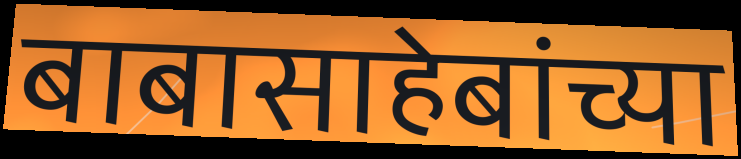
बाबासाहेबांच्‍या